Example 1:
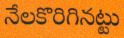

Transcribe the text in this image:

నేలకొరిగినట్టు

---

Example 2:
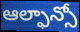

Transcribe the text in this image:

ఆల్ఫాన్సో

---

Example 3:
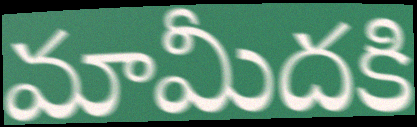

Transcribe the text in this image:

మామీదకి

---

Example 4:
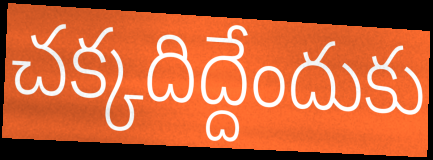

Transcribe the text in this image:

చక్కదిద్దేందుకు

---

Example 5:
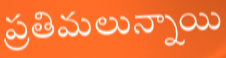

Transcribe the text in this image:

ప్రతిమలున్నాయి